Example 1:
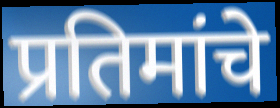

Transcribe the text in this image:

प्रतिमांचे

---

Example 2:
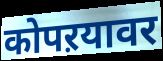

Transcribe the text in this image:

कोपऱयावर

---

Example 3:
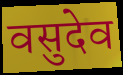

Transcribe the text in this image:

वसुदेव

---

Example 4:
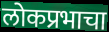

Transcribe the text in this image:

लोकप्रभाचा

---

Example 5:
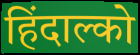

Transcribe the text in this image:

हिंदाल्को